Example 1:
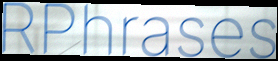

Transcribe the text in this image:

RPhrases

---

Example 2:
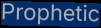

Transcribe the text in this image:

Prophetic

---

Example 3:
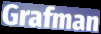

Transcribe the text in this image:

Grafman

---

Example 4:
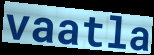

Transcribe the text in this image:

vaatla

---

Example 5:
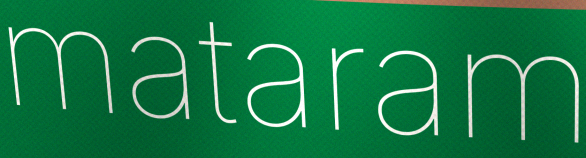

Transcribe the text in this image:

mataram